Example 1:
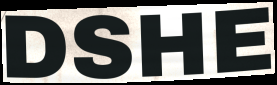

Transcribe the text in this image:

DSHE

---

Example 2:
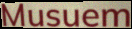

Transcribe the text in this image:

Musuem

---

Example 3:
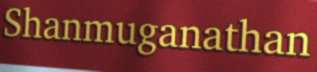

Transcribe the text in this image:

Shanmuganathan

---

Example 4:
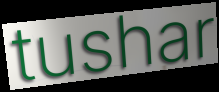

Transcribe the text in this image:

tushar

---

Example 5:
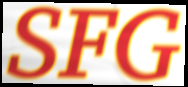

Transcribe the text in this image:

SFG